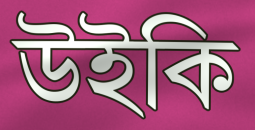
উইকি